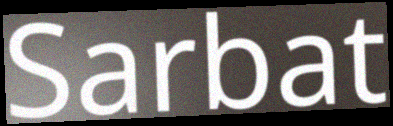
Sarbat